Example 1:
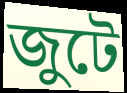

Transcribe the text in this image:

জুটে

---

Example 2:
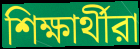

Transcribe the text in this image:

শিক্ষার্থীরা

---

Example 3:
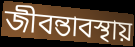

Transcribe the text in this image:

জীবন্তাবস্থায়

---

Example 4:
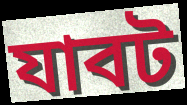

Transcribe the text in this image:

যাবট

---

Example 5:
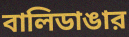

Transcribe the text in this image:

বালিডাঙার